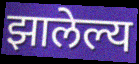
झालेल्य